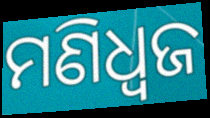
ମଣିଧ୍ୱଜ